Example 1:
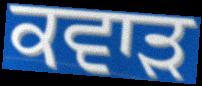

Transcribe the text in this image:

ਕਵਾੜ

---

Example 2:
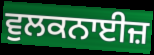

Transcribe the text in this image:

ਵੁਲਕਨਾਈਜ਼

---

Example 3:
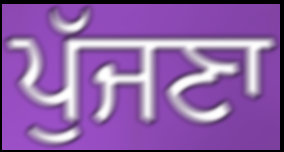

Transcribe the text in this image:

ਪੁੱਜਣਾ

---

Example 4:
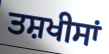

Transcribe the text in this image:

ਤਸ਼ਖੀਸਾਂ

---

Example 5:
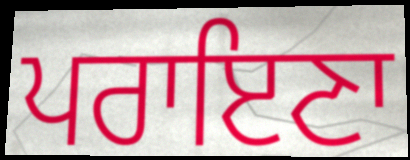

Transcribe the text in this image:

ਪਰਾਇਣਾ